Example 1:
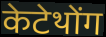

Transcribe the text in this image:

केटेथोंग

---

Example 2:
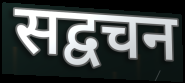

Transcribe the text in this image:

सद्वचन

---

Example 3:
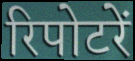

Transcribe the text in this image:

रिपोटरें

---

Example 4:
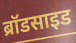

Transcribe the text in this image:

ब्रॉडसाइड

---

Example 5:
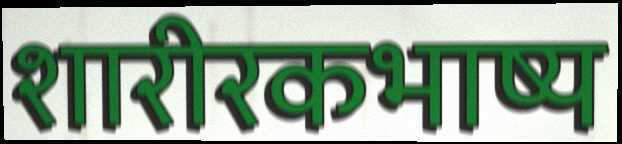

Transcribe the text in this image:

शारीरकभाष्य